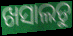
ଖସାଲଡୁ